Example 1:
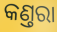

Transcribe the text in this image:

କଣ୍ତରା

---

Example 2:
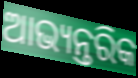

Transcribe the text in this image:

ଆଭ୍ୟନ୍ତରିକ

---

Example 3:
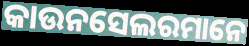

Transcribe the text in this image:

କାଉନସେଲରମାନେ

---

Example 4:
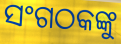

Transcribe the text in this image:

ସଂଗଠକଙ୍କୁ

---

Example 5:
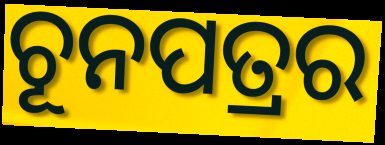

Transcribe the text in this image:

ଚୂନପତ୍ରର